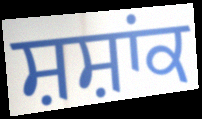
ਸ਼ਸ਼ਾਂਕ